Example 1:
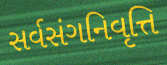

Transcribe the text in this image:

સર્વસંગનિવૃત્તિ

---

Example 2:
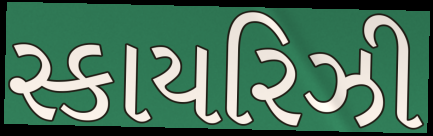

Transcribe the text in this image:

સ્કાયરિઝી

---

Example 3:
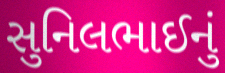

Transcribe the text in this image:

સુનિલભાઈનું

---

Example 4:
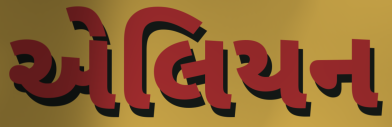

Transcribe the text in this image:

એલિયન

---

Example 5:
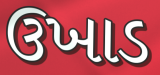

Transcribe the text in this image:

ઉખાડ